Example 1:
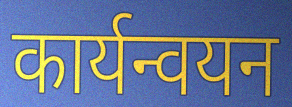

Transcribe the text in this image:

कार्यन्वयन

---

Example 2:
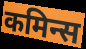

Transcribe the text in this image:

कमिन्स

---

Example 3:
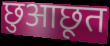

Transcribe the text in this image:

छुआछूत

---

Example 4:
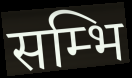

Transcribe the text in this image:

सम्भि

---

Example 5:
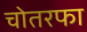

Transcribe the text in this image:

चोतरफा